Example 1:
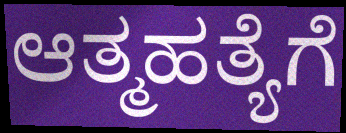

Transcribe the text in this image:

ಆತ್ಮಹತ್ಯೆಗೆ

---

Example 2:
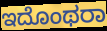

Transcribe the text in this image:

ಇದೊಂಥರಾ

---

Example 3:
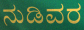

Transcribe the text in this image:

ನುಡಿವರ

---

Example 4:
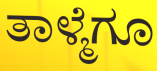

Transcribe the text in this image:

ತಾಳ್ಮೆಗೂ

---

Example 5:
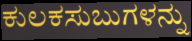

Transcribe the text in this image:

ಕುಲಕಸುಬುಗಳನ್ನು